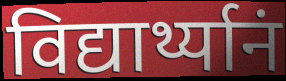
विद्यार्थ्यानं